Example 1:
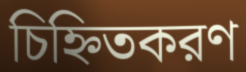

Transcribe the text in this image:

চিহ্নিতকরণ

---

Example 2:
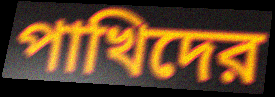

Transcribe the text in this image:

পাখিদের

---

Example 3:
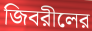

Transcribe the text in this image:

জিবরীলের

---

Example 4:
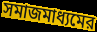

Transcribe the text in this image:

সমাজমাধ্যমের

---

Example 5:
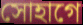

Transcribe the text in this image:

সোহাগে